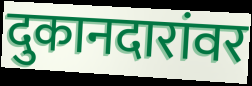
दुकानदारांवर